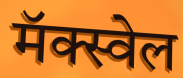
मॅक्स्वेल